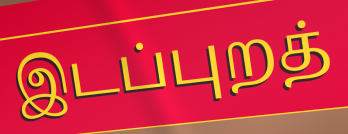
இடப்புறத்